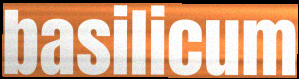
basilicum